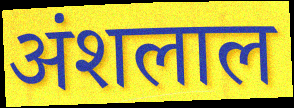
अंशलाल